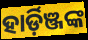
ହାର୍ଡ଼ିଞ୍ଜଙ୍କ